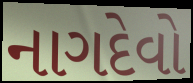
નાગદેવો